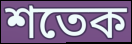
শতেক